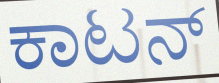
ಕಾಟನ್